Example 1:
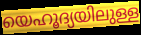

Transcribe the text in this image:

യെഹൂദ്യയിലുള്ള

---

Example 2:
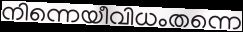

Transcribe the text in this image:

നിന്നെയീവിധംതന്നെ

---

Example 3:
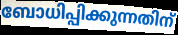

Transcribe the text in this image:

ബോധിപ്പിക്കുന്നതിന്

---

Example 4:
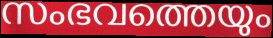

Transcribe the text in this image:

സംഭവത്തെയും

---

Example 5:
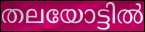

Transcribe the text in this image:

തലയോട്ടിൽ